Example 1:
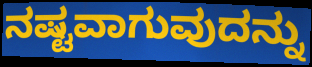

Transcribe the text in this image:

ನಷ್ಟವಾಗುವುದನ್ನು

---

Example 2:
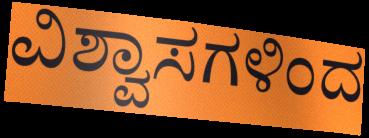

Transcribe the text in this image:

ವಿಶ್ವಾಸಗಳಿಂದ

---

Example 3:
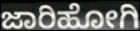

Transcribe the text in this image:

ಜಾರಿಹೋಗಿ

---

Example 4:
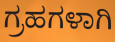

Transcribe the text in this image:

ಗ್ರಹಗಳಾಗಿ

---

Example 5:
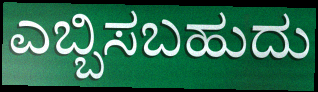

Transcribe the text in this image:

ಎಬ್ಬಿಸಬಹುದು